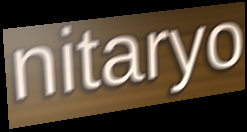
nitaryo